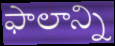
ఫాలాన్ని